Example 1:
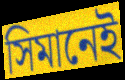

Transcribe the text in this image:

সিমানেই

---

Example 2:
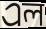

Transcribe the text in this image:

এল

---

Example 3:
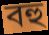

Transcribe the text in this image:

বহু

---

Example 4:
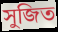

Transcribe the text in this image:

সুজিত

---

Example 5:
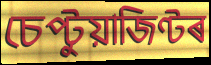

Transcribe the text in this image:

চেপ্টুয়াজিণ্টৰ